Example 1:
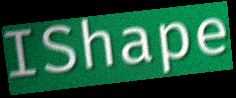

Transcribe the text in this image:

IShape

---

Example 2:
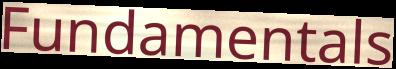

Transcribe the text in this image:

Fundamentals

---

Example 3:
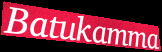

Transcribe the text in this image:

Batukamma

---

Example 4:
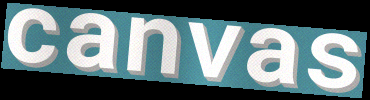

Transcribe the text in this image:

canvas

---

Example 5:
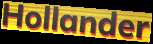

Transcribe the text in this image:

Hollander